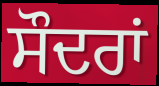
ਸੌਦਰਾਂ